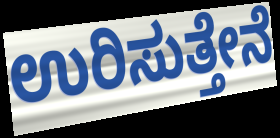
ಉರಿಸುತ್ತೇನೆ